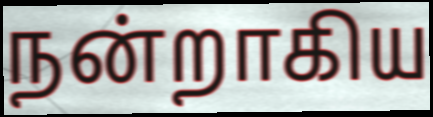
நன்றாகிய